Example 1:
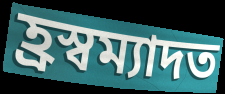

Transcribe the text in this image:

হ্ৰস্বম্যাদত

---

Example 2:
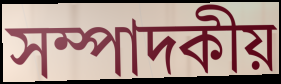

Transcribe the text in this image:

সম্পাদকীয়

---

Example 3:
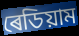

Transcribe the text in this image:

ৰেডিয়াম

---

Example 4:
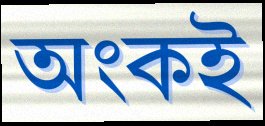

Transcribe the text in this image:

অংকই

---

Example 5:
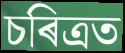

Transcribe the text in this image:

চৰিত্ৰত